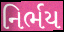
નિર્ભય